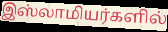
இஸ்லாமியர்களில்